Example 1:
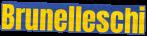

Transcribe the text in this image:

Brunelleschi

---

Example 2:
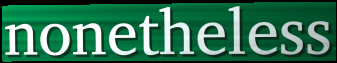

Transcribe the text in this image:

nonetheless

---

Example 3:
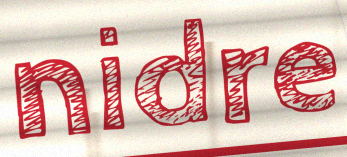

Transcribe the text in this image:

nidre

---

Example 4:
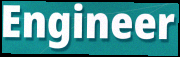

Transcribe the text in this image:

Engineer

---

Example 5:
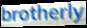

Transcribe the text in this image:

brotherly